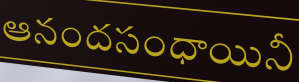
ఆనందసంధాయినీ